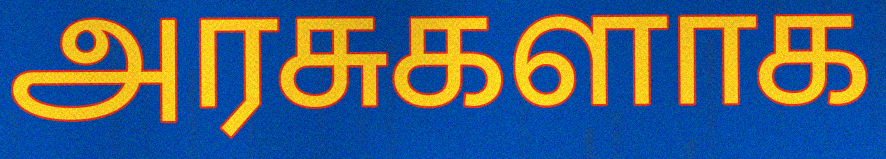
அரசுகளாக